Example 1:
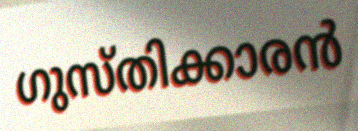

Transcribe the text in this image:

ഗുസ്തിക്കാരൻ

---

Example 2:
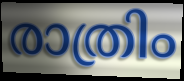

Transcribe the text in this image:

രാത്രിം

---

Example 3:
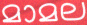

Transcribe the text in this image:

മാമല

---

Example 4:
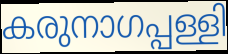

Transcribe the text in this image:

കരുനാഗപ്പള്ളി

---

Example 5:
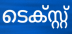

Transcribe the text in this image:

ടെക്സ്റ്റ്